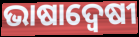
ଭାଷାଦ୍ଵେଷୀ